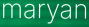
maryan